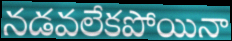
నడవలేకపోయినా